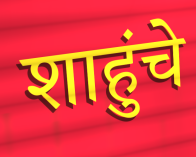
शाहुंचे